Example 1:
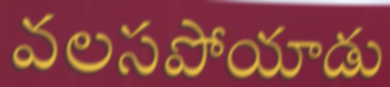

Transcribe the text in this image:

వలసపోయాడు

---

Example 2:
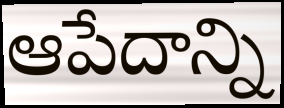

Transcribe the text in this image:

ఆపేదాన్ని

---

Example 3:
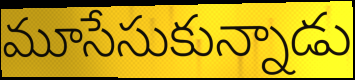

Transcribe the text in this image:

మూసేసుకున్నాడు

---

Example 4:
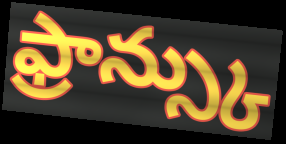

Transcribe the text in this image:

ఫ్రాన్స్కు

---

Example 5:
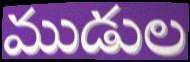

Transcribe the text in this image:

ముడుల